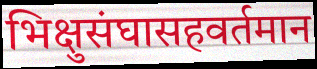
भिक्षुसंघासहवर्तमान